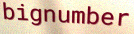
bignumber